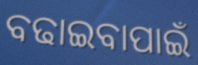
ବଢାଇବାପାଇଁ